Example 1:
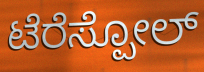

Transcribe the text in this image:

ಟೆರೆಸ್ಪೋಲ್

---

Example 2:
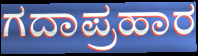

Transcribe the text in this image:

ಗದಾಪ್ರಹಾರ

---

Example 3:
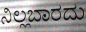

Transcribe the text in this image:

ನಿಲ್ಲಬಾರದು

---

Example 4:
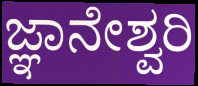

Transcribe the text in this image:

ಜ್ಞಾನೇಶ್ವರಿ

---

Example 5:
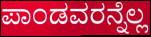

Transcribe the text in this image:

ಪಾಂಡವರನ್ನೆಲ್ಲ